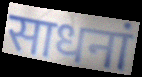
साधनां